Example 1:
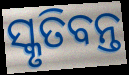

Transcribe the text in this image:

ସ୍କୃତିବନ୍ତ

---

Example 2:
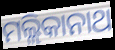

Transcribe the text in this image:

ମଲ୍ଲିକାନାଥ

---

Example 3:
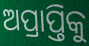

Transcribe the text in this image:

ଅପ୍ରାପ୍ତିକୁ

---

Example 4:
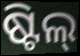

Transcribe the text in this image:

ଷ୍ଟିଲ୍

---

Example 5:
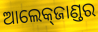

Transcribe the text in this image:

ଆଲେକ୍‌ଜାଣ୍ଡର